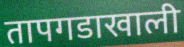
तापगडाखाली